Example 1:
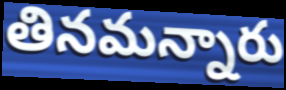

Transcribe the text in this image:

తినమన్నారు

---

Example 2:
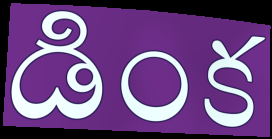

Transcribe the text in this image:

డింక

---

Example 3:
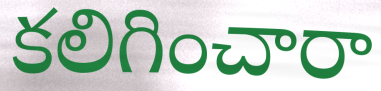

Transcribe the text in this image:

కలిగించారా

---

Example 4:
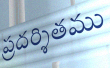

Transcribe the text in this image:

ప్రదర్శితము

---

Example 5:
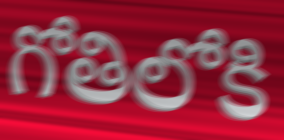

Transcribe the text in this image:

గోతిలోకి